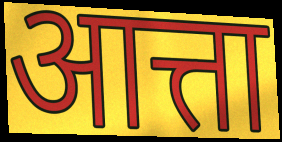
आत्ता